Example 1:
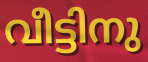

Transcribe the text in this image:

വീട്ടിനു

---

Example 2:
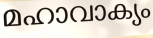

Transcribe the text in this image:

മഹാവാക്യം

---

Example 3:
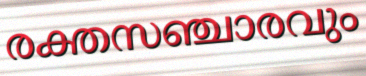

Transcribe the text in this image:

രക്തസഞ്ചാരവും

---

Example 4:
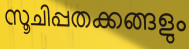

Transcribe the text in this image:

സൂചിപ്പതക്കങ്ങളും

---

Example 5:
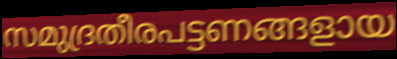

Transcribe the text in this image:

സമുദ്രതീരപട്ടണങ്ങളായ